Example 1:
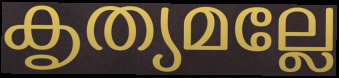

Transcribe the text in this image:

കൃത്യമല്ലേ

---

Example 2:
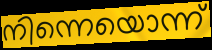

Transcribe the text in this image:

നിന്നെയൊന്ന്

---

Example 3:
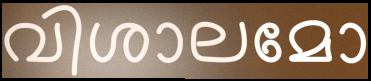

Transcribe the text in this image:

വിശാലമോ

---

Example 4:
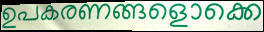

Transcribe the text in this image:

ഉപകരണങ്ങളൊക്കെ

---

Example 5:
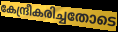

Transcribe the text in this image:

കേന്ദ്രീകരിച്ചതോടെ